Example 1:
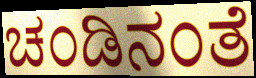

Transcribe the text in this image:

ಚಂಡಿನಂತೆ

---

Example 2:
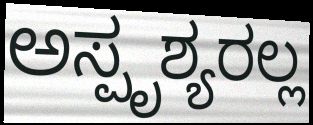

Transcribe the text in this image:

ಅಸ್ಪೃಶ್ಯರಲ್ಲ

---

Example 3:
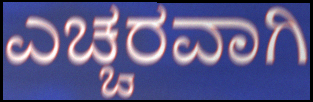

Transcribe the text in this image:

ಎಚ್ಚರವಾಗಿ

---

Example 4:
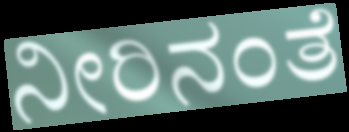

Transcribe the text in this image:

ನೀರಿನಂತೆ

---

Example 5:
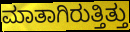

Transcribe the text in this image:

ಮಾತಾಗಿರುತ್ತಿತ್ತು